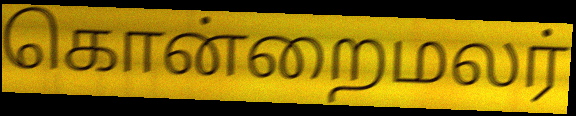
கொன்றைமலர்